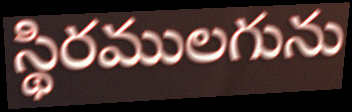
స్థిరములగును